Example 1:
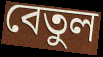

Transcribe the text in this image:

বেতুল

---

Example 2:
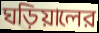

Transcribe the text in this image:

ঘড়িয়ালের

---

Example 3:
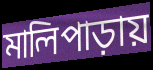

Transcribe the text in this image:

মালিপাড়ায়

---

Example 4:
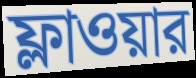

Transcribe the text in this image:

ফ্লাওয়ার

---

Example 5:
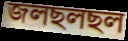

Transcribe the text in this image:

জলছলছল